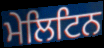
ਮੇਲਿਟਿਨ